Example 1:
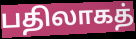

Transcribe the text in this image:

பதிலாகத்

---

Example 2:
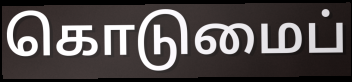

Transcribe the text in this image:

கொடுமைப்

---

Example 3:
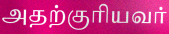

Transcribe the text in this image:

அதற்குரியவர்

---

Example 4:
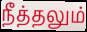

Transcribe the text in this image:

நீத்தலும்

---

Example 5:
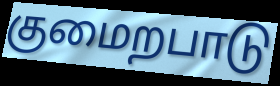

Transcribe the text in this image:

குமைறபாடு